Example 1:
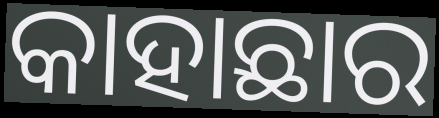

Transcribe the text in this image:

କାହାଛାର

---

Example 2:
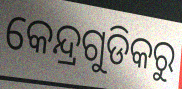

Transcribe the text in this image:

କେନ୍ଦ୍ରଗୁଡିକରୁ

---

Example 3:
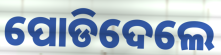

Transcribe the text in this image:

ପୋଡିଦେଲେ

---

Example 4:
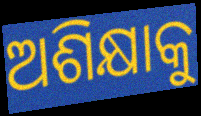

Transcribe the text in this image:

ଅଶିକ୍ଷାକୁ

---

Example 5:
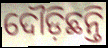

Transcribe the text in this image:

ଦୌଡ଼ିଛନ୍ତି